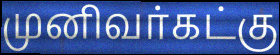
முனிவர்கட்கு